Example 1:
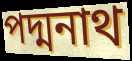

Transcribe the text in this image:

পদ্মনাথ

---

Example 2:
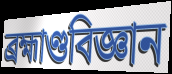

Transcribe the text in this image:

ব্ৰহ্মাণ্ডবিজ্ঞান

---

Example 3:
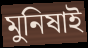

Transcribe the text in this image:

মুনিষাই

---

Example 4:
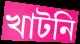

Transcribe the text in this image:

খাটনি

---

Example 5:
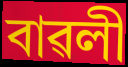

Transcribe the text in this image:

বাৱলী